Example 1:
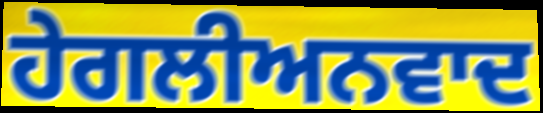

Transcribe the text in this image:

ਹੇਗਲੀਅਨਵਾਦ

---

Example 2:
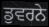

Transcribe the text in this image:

ਡੁਵਰਨੇ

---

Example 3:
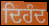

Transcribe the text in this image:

ਦਿਹੰਦ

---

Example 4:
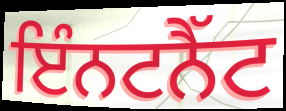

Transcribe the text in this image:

ਇੰਨਟਨੈੱਟ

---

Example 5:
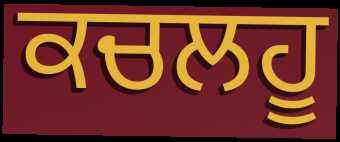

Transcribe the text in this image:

ਕਚਲਹੂ